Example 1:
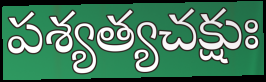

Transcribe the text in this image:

పశ్యత్యచక్షుః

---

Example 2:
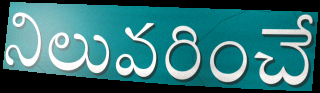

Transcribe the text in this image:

నిలువరించే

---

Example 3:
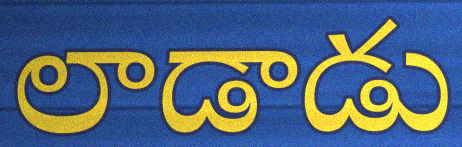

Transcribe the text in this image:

లాడాడు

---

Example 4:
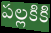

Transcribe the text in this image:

పల్లకికి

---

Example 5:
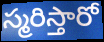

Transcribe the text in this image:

స్మరిస్తారో